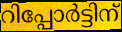
റിപ്പോർട്ടിന്